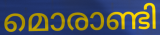
മൊരാണ്ടി